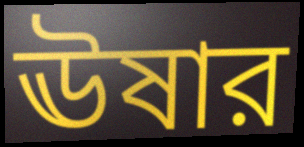
ঊষার